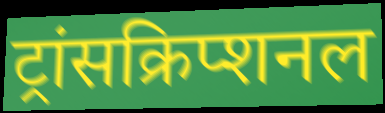
ट्रांसक्रिप्शनल